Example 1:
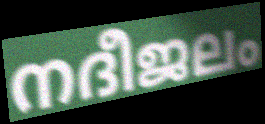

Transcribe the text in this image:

നദീജലം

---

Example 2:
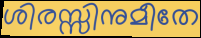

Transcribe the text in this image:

ശിരസ്സിനുമീതേ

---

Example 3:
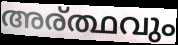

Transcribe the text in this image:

അര്ത്ഥവും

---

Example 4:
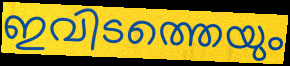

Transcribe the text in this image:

ഇവിടത്തെയും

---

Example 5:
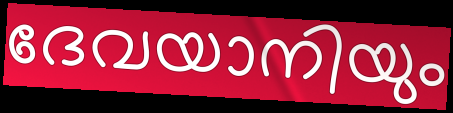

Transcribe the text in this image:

ദേവയാനിയും